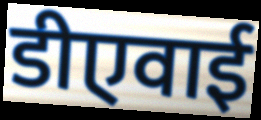
डीएवाई